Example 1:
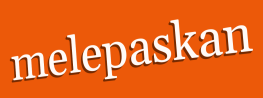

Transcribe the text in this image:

melepaskan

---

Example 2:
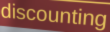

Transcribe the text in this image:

discounting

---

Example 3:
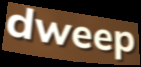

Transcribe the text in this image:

dweep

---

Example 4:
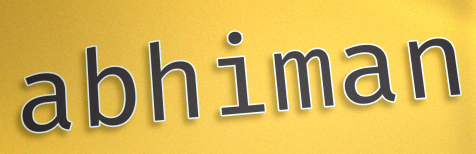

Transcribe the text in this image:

abhiman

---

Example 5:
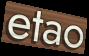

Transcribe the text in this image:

etao